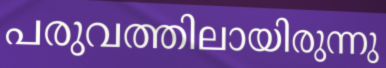
പരുവത്തിലായിരുന്നു